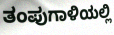
ತಂಪುಗಾಳಿಯಲ್ಲಿ